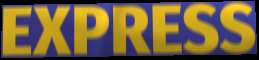
EXPRESS